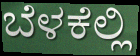
ಬೆಳಕೆಲ್ಲಿ